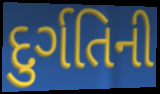
દુર્ગતિની